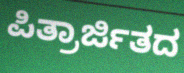
ಪಿತ್ರಾರ್ಜಿತದ